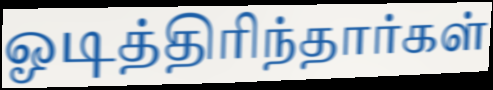
ஓடித்திரிந்தார்கள்